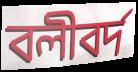
বলীবর্দ